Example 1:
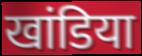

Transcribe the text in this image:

खांडिया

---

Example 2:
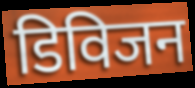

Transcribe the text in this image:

डिविजन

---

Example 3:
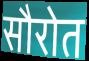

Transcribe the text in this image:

सौरोत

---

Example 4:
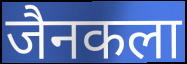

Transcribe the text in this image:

जैनकला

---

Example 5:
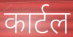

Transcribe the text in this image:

कार्टल